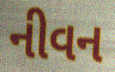
નીવન